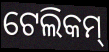
ଟେଲିକମ୍